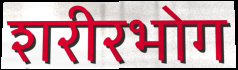
शरीरभोग